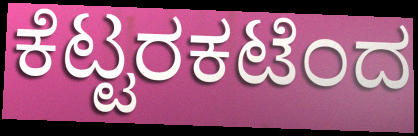
ಕೆಟ್ಟರಕಟೆಂದ